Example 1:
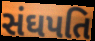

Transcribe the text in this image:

સંઘપતિ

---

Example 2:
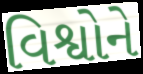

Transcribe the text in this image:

વિશ્વોને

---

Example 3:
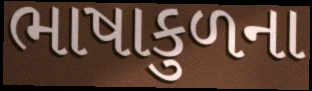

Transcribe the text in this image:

ભાષાકુળના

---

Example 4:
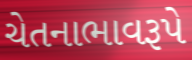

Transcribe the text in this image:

ચેતનાભાવરૂપે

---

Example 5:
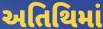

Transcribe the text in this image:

અતિથિમાં